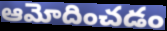
ఆమోదించడం